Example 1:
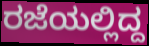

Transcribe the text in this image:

ರಜೆಯಲ್ಲಿದ್ದ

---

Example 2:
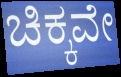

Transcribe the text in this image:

ಚಿಕ್ಕವೇ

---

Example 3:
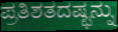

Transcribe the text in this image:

ಪ್ರತಿಶತದಷ್ಟನ್ನು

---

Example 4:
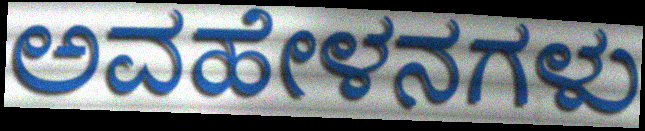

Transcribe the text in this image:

ಅವಹೇಳನಗಳು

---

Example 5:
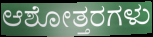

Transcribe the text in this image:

ಆಶೋತ್ತರಗಳು